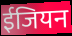
ईजियन